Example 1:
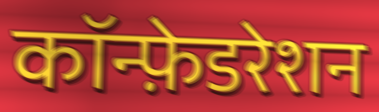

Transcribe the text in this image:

कॉन्फ़ेडरेशन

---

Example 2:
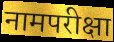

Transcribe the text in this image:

नामपरीक्षा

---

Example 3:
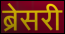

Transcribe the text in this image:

ब्रेसरी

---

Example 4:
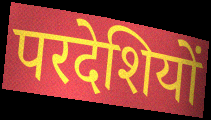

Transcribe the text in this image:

परदेशियों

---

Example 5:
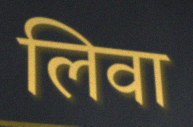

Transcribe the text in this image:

लिवा